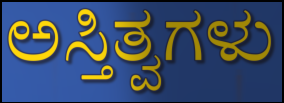
ಅಸ್ತಿತ್ವಗಳು